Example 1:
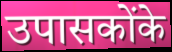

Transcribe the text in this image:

उपासकोंके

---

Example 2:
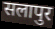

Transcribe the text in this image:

सलापुर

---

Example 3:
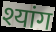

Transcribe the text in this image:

श्यांग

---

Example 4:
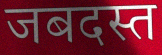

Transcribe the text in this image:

जबदस्त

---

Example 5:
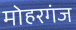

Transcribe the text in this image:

मोहरगंज